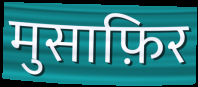
मुसाफ़िर